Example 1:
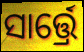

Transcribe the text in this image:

ସାର୍ତ୍ତ୍ରେ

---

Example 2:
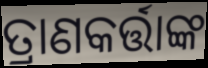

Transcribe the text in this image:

ତ୍ରାଣକର୍ତ୍ତାଙ୍କ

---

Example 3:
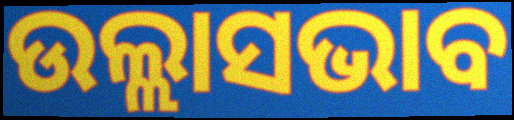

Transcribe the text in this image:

ଉଲ୍ଲାସଭାବ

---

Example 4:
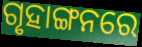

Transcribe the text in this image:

ଗୃହାଙ୍ଗନରେ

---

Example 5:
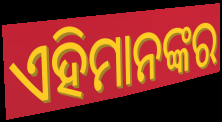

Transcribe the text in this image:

ଏହିମାନଙ୍କର